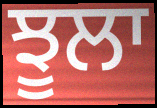
ਝੂਲਾ